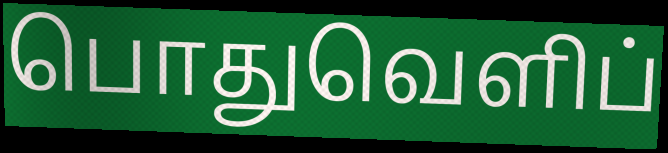
பொதுவெளிப்